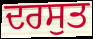
ਦਰਸੁਤ